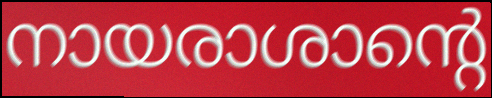
നായരാശാന്റെ